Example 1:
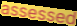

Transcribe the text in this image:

assessed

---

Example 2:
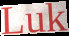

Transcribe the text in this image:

Luk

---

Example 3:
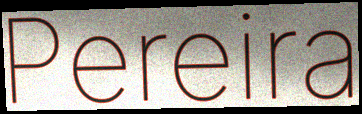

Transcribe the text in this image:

Pereira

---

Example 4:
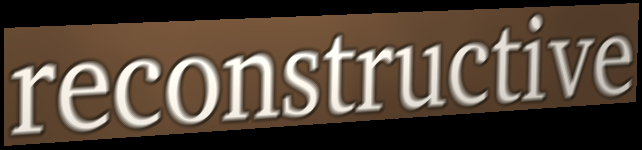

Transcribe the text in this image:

reconstructive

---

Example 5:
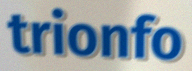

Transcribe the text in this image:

trionfo